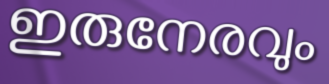
ഇരുനേരവും